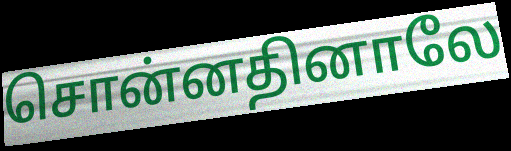
சொன்னதினாலே